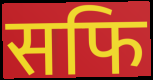
सफि